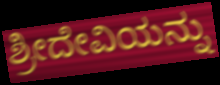
ಶ್ರೀದೇವಿಯನ್ನು